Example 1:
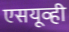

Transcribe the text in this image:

एसयूव्ही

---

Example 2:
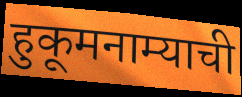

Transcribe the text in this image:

हुकूमनाम्याची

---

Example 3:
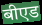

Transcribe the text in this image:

बीएड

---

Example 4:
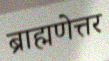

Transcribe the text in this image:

ब्राह्मणेत्तर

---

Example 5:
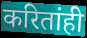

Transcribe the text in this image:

करितांही